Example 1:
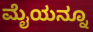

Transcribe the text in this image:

ಮೈಯನ್ನೂ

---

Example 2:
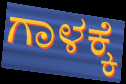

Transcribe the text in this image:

ಗಾಳಕ್ಕೆ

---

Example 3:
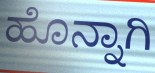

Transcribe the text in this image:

ಹೊನ್ನಾಗಿ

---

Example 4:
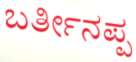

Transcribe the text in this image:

ಬರ್ತೀನಪ್ಪ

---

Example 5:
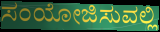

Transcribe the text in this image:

ಸಂಯೋಜಿಸುವಲ್ಲಿ